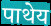
पाथेय